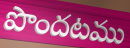
పొందటము